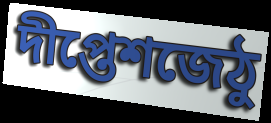
দীপ্তেশজেঠু